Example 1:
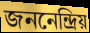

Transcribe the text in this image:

জননেন্দ্রিয়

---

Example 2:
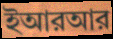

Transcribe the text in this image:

ইআরআর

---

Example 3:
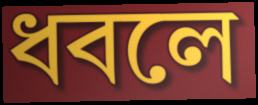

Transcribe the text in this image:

ধবলে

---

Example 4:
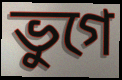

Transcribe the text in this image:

ভুগে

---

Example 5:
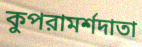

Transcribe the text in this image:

কুপরামর্শদাতা